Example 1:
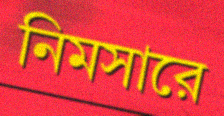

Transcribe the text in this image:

নিমসারে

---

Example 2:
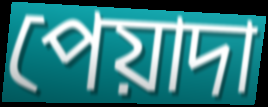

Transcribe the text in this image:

পেয়াদা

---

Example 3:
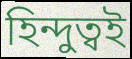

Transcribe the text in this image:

হিন্দুত্বই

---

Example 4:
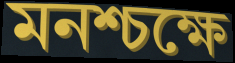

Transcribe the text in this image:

মনশ্চক্ষে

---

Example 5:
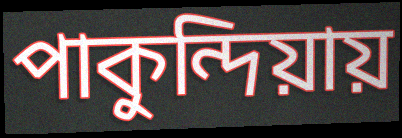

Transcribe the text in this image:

পাকুন্দিয়ায়